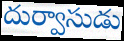
దుర్వాసుడు